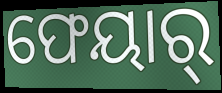
ଫେୟାର୍